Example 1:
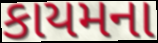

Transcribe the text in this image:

કાયમના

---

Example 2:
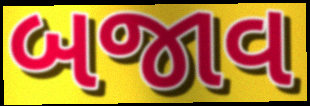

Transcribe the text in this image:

બજાવ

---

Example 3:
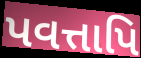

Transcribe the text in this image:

પવત્તાપિ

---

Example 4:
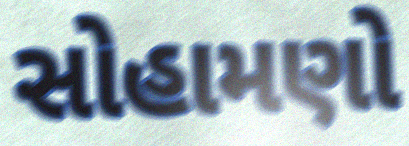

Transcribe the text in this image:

સોહામણો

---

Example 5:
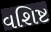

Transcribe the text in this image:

વશિષ્ટ